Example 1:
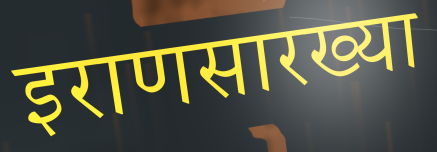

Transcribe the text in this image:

इराणसारख्या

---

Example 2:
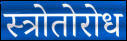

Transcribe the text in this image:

स्त्रोतोरोध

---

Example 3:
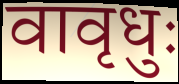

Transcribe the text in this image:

वावृधुः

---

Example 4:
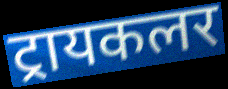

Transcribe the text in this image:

ट्रायकलर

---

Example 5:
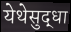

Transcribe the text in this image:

येथेसुद्धा